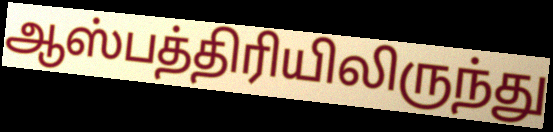
ஆஸ்பத்திரியிலிருந்து